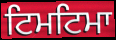
ਟਿਮਟਿਮਾ